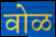
वोळ